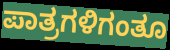
ಪಾತ್ರಗಳಿಗಂತೂ